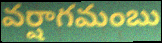
వర్షాగమంబు